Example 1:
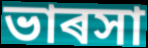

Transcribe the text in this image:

ভাৰসা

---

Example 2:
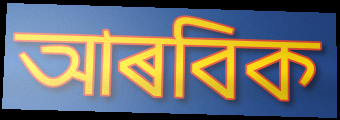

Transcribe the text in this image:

আৰবিক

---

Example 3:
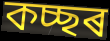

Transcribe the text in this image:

কচ্ছৰ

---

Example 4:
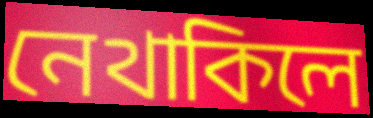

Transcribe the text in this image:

নেথাকিলে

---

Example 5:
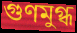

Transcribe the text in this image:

গুণমুগ্ধ